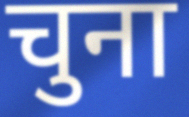
चुना